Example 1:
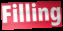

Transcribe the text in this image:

Filling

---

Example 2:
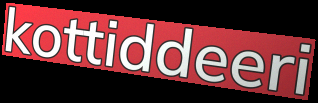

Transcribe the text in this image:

kottiddeeri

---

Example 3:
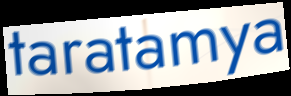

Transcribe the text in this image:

taratamya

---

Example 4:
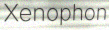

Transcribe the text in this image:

Xenophon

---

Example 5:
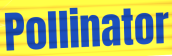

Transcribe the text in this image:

Pollinator